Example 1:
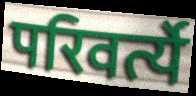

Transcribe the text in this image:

परिवर्त्ये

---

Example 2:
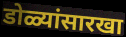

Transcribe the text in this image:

डोळ्यांसारखा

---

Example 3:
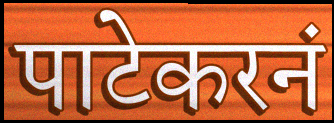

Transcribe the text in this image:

पाटेकरनं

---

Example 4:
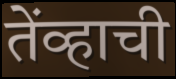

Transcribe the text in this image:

तेंव्हाची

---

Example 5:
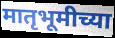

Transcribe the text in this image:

मातृभूमीच्या